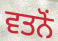
ਵਤਨੋਂ